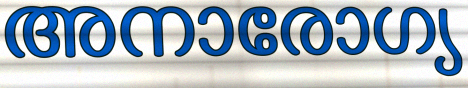
അനാരോഗ്യ